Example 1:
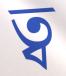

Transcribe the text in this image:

ত্ব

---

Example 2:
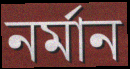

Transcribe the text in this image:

নর্মান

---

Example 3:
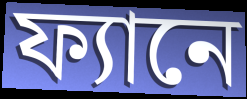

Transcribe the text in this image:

ফ্যানে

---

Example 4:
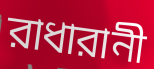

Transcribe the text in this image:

রাধারানী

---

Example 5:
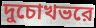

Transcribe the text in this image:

দুচোখভরে